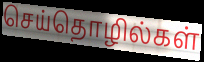
செய்தொழில்கள்